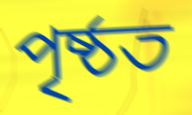
পৃষ্ঠত